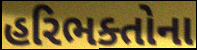
હરિભક્તોના